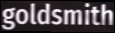
goldsmith